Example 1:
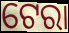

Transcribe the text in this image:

ଟେରା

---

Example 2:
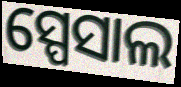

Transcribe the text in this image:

ସ୍ପେସାଲ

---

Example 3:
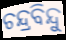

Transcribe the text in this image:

ଚନ୍ଦ୍ରବିନ୍ଦୁ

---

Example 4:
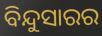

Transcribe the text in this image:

ବିନ୍ଦୁସାରର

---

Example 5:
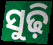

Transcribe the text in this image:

ସୁଢ଼ି